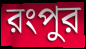
রংপুর